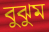
বুঝুম